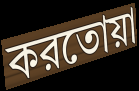
করতোয়া